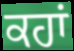
ਕਹਾਂ